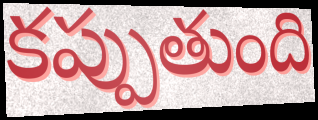
కప్పుతుంది